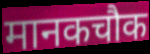
मानकचौक